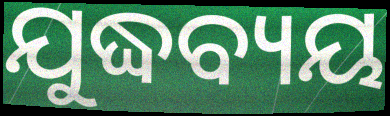
ଯୁଦ୍ଧବ୍ୟୟ